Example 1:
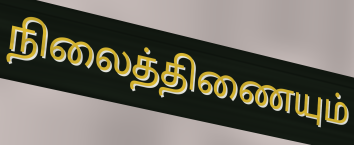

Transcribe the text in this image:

நிலைத்திணையும்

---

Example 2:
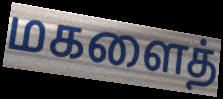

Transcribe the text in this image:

மகளைத்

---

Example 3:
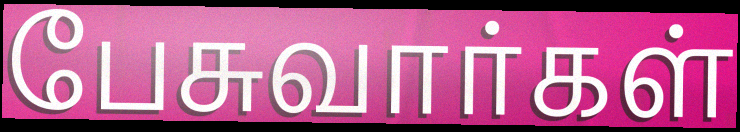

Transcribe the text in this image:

பேசுவார்கள்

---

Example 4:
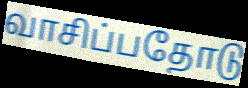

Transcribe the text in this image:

வாசிப்பதோடு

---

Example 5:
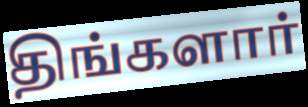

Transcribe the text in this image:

திங்களார்